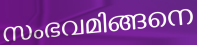
സംഭവമിങ്ങനെ